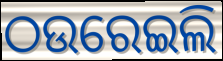
ଠଉରେଇଲି